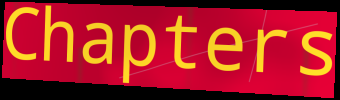
Chapters